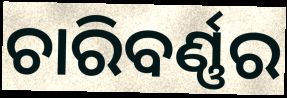
ଚାରିବର୍ଣ୍ଣର